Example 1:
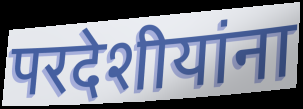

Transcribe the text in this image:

परदेशीयांना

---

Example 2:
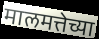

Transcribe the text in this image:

मालमत्तेच्या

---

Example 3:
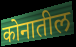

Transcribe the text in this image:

कोनातील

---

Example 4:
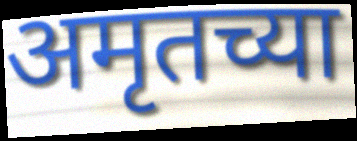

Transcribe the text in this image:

अमृतच्या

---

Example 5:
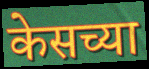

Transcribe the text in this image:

केसच्या